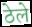
ठेले